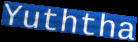
Yuththa